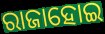
ରାଜାହୋଇ